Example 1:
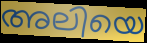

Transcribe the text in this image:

അലിയെ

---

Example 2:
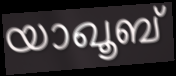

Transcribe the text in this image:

യാഖൂബ്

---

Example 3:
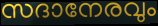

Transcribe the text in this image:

സദാനേരവും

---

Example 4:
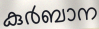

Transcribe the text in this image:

കുർബാന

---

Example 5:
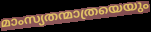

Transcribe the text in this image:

മാംസ്യതന്മാത്രയെയും